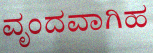
ವೃಂದವಾಗಿಹ